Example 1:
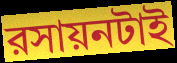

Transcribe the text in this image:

রসায়নটাই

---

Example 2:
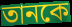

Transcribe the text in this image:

তানকে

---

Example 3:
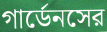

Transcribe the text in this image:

গার্ডেনসের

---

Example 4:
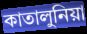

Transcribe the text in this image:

কাতালুনিয়া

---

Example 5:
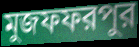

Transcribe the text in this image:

মুজফফরপুর